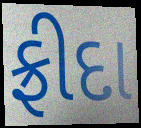
ફ્રીદા